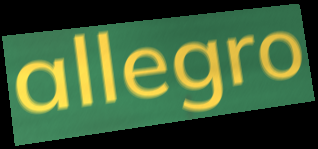
allegro